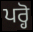
ਪਰ੍ਹੋ